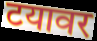
टयावर